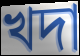
খদা